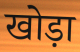
खोड़ा